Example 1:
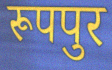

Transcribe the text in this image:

रूपपुर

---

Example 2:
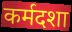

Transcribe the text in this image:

कर्मदशा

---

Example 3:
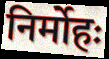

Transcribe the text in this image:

निर्मोहः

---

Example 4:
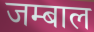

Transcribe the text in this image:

जम्बाल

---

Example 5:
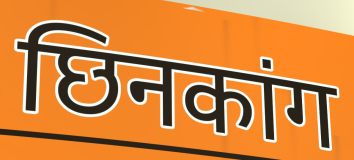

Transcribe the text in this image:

छिनकांग